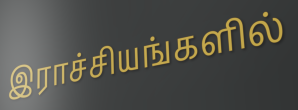
இராச்சியங்களில்